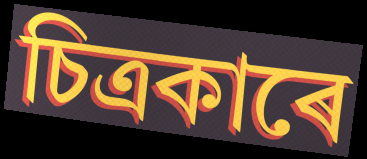
চিত্ৰকাৰে